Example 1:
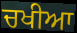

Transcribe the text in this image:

ਚਖੀਆ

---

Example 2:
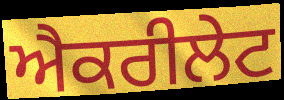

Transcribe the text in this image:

ਐਕਰੀਲੇਟ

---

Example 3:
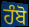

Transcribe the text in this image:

ਹੰਬੋ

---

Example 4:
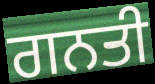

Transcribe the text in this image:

ਗਨਤੀ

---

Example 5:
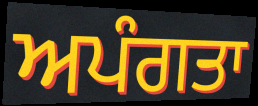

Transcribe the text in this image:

ਅਪੰਗਤਾ